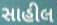
સાહીલ